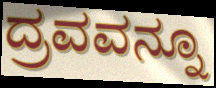
ದ್ರವವನ್ನೂ